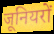
जूनियरों